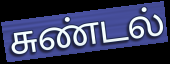
சுண்டல்